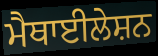
ਮੈਥਾਈਲੇਸ਼ਨ